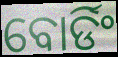
ବୋର୍ଡିଂ